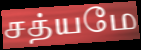
சத்யமே